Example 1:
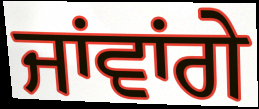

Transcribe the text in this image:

ਜਾਂਵਾਂਗੇ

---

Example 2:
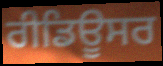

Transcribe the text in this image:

ਰੀਡਿਊਸਰ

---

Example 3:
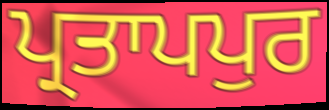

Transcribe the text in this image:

ਪ੍ਰਤਾਪਪੁਰ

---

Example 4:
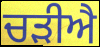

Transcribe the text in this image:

ਚੜੀਐ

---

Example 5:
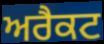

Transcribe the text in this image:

ਅਰੈਕਟ